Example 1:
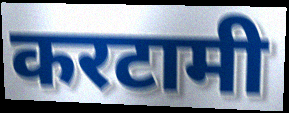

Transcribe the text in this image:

करटामी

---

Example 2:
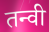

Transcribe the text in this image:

तन्वी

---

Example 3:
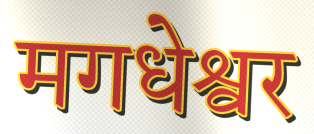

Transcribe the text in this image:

मगधेश्वर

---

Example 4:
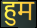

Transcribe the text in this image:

हुम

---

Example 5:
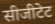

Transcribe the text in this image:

सीजीटेट